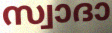
സ്വാദാ